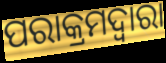
ପରାକ୍ରମଦ୍ୱାରା